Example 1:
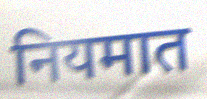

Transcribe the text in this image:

नियमात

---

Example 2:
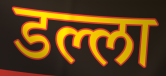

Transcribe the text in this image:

डल्ला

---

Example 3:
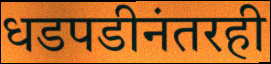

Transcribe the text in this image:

धडपडीनंतरही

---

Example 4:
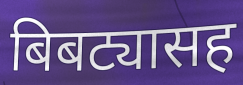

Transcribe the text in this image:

बिबट्यासह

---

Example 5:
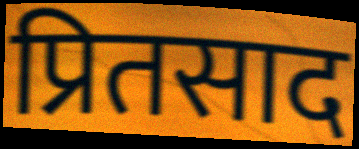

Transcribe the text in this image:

प्रितसाद